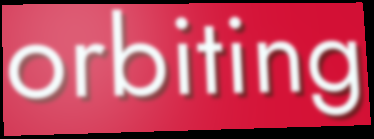
orbiting